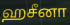
ஹசீனா